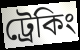
ট্ৰেকিং